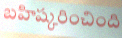
బహిష్కరించింది